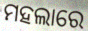
ମହଲାରେ